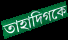
তাহাদিগকে